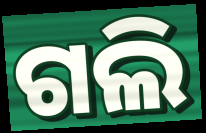
ଗଲି